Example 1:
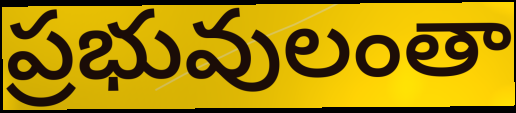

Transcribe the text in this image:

ప్రభువులంతా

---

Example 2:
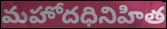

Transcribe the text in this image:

మహోదధినిహిత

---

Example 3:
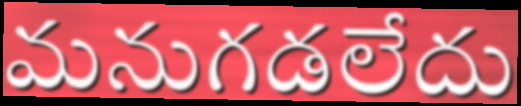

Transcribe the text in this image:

మనుగడలేదు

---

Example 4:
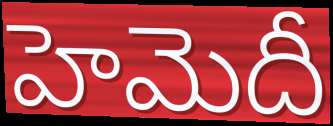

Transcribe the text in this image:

హెమెదీ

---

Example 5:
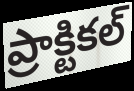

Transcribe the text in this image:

ప్రాక్టికల్